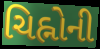
ચિહ્નોની